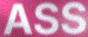
ASS